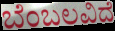
ಬೆಂಬಲವಿದೆ